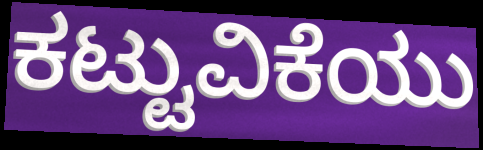
ಕಟ್ಟುವಿಕೆಯು